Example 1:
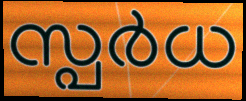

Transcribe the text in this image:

സ്പർധ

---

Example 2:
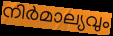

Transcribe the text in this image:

നിർമാല്യവും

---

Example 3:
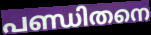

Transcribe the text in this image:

പണ്ഡിതനെ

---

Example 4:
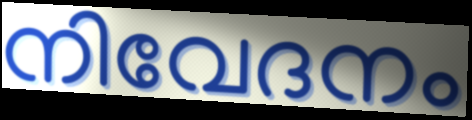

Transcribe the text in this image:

നിവേദനം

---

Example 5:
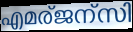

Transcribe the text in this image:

എമര്ജന്സി